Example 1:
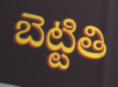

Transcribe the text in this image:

బెట్టితి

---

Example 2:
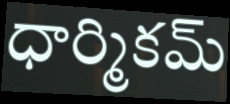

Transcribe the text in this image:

ధార్మికమ్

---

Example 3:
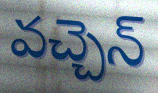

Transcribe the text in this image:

వచ్చెన్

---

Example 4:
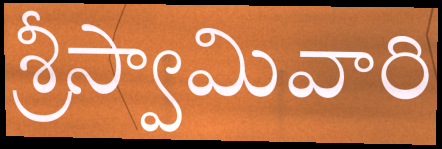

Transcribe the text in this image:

శ్రీస్వామివారి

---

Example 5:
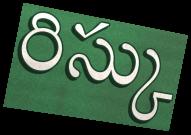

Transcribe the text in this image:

రిస్కు